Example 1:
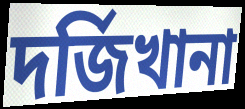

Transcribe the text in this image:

দর্জিখানা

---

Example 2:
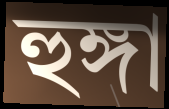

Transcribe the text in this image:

হুঙ্গা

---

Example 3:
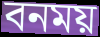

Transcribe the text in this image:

বনময়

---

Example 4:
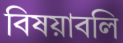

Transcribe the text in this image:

বিষয়াবলি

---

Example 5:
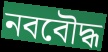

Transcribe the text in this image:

নববৌদ্ধ